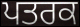
ਪਤਰਕ